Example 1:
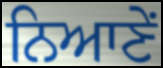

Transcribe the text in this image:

ਨਿਆਣੇਂ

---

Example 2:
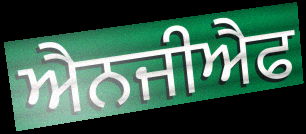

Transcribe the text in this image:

ਐਨਜੀਐਫ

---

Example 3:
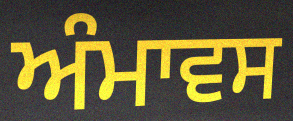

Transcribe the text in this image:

ਅੰਮਾਵਸ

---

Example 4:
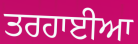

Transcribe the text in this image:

ਤਰਹਾਈਆ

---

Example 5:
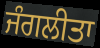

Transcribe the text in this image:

ਜੰਗਲੀਤਾ